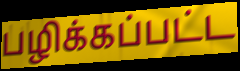
பழிக்கப்பட்ட